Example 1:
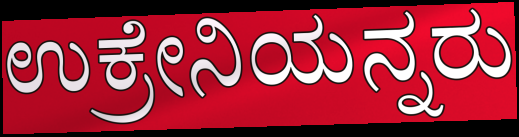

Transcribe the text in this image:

ಉಕ್ರೇನಿಯನ್ನರು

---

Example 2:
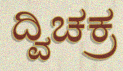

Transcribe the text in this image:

ದ್ವಿಚಕ್ರ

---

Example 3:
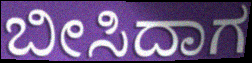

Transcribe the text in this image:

ಬೀಸಿದಾಗ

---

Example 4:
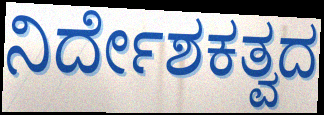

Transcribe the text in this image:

ನಿರ್ದೇಶಕತ್ವದ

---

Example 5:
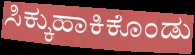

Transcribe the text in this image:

ಸಿಕ್ಕುಹಾಕಿಕೊಂಡು